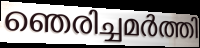
ഞെരിച്ചമർത്തി